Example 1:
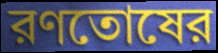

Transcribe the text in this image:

রণতোষের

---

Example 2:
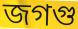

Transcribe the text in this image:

জগগু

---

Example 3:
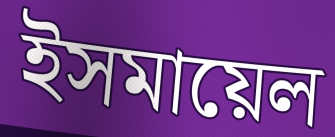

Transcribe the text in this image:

ইসমায়েল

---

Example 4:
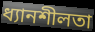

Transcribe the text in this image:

ধ্যানশীলতা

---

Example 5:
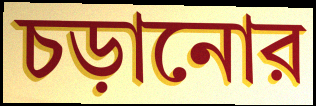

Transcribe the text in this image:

চড়ানোর